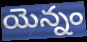
యెన్నం